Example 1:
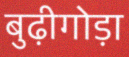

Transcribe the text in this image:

बुढ़ीगोड़ा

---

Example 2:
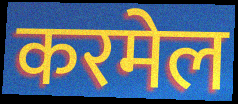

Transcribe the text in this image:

करमेल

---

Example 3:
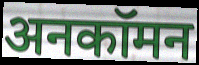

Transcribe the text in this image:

अनकॉमन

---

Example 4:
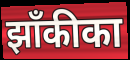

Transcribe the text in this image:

झाँकीका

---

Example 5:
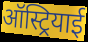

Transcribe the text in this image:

ऑस्ट्रियाई